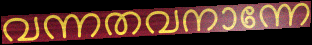
വന്നതവനാന്നേ